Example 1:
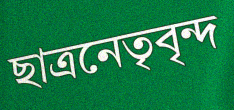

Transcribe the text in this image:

ছাত্রনেতৃবৃন্দ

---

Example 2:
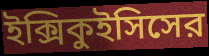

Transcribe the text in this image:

ইক্সিকুইসিসের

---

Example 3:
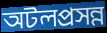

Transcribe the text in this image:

অটলপ্রসন্ন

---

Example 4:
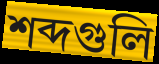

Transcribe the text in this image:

শব্দগুলি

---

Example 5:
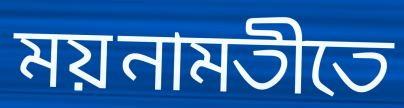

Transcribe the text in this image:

ময়নামতীতে